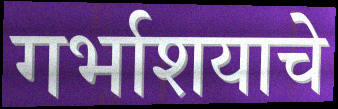
गर्भाशयाचे